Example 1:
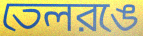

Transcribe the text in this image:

তেলরঙে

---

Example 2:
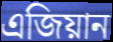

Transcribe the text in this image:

এজিয়ান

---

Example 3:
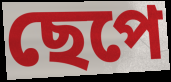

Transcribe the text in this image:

ছেপে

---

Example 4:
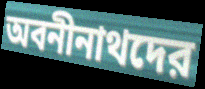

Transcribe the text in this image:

অবনীনাথদের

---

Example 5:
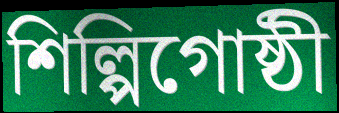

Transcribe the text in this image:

শিল্পিগোষ্ঠী